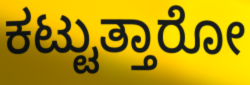
ಕಟ್ಟುತ್ತಾರೋ